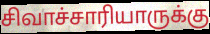
சிவாச்சாரியாருக்கு